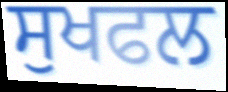
ਸੁਖਫਲ